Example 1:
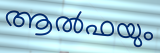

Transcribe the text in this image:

ആൽഫയും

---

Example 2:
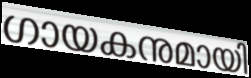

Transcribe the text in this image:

ഗായകനുമായി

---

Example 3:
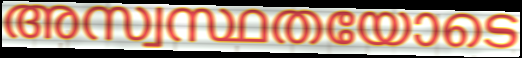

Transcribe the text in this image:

അസ്വസ്ഥതയോടെ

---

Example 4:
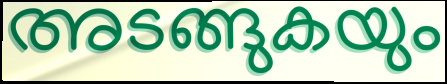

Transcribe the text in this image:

അടങ്ങുകയും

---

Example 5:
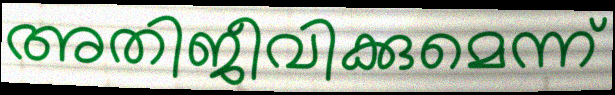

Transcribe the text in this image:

അതിജീവിക്കുമെന്ന്